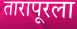
तारापूरला